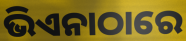
ଭିଏନାଠାରେ